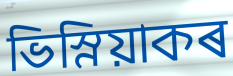
ভিস্নিয়াকৰ